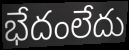
భేదంలేదు